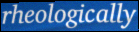
rheologically